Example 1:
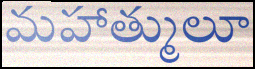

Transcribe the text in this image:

మహాత్ములూ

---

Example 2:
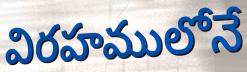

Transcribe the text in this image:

విరహములోనే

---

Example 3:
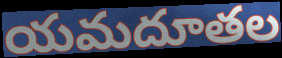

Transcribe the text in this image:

యమదూతల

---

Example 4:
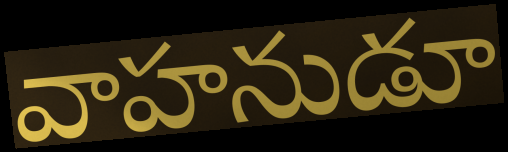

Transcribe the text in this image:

వాహనుడూ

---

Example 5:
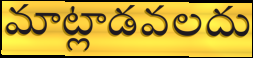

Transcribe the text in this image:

మాట్లాడవలదు